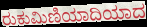
ರುಕುಮಿಣಿಯಾದಿಯಾದ